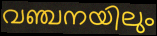
വഞ്ചനയിലും